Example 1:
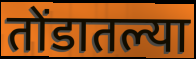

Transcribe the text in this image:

तोंडातल्या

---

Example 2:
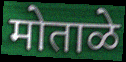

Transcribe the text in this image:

मोताळे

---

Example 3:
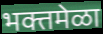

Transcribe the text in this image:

भक्तमेळा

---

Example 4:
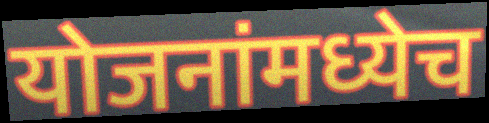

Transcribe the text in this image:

योजनांमध्येच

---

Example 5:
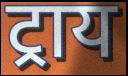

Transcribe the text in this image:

ट्राय